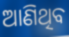
ଆଣିଥିବ